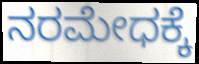
ನರಮೇಧಕ್ಕೆ